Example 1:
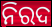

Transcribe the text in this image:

ନିରଦ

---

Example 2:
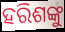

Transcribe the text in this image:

ହରିଶଙ୍କୁ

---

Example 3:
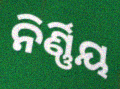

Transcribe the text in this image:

ନିର୍ଣ୍ଣିୟ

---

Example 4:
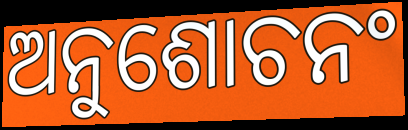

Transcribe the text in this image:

ଅନୁଶୋଚନଂ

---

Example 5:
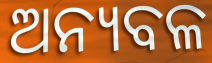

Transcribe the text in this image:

ଅନ୍ୟବଳ